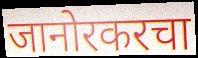
जानोरकरचा